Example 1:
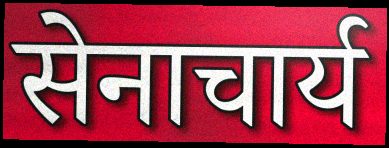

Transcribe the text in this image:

सेनाचार्य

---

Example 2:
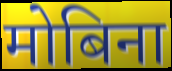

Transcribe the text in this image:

मोबिना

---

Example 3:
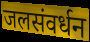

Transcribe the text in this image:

जलसंवर्धन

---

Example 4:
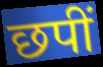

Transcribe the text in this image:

छपीं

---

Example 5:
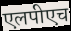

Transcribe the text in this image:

एलपीएच